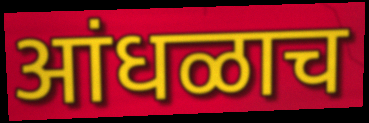
आंधळाच